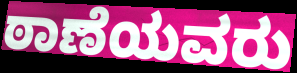
ಠಾಣೆಯವರು